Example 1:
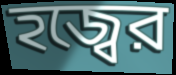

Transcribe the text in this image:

হজ্বের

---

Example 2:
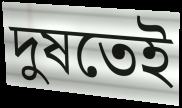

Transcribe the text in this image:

দুষতেই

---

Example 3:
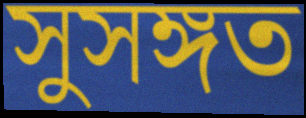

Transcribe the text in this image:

সুসঙ্গত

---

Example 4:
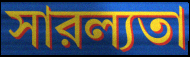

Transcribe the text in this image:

সারল্যতা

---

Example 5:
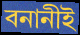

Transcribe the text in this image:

বনানীই